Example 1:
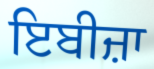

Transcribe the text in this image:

ਇਬੀਜ਼ਾ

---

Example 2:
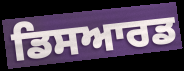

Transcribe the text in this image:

ਡਿਸਆਰਡ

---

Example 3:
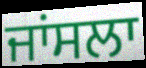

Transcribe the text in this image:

ਜਾਂਸਲਾ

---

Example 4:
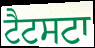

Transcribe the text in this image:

ਟੈਟਸਟਾ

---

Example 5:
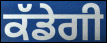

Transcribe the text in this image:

ਕੱਡੇਗੀ